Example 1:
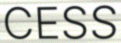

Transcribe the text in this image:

CESS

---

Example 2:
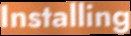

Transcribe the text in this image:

Installing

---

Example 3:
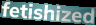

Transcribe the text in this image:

fetishized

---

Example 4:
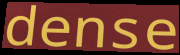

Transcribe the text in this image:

dense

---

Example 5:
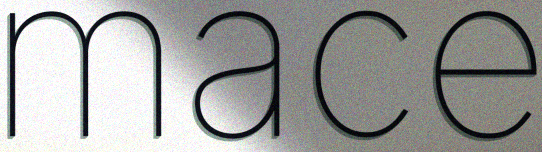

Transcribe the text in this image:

mace